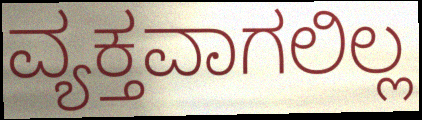
ವ್ಯಕ್ತವಾಗಲಿಲ್ಲ